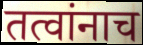
तत्वांनाच